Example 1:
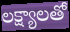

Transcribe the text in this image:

లక్ష్యాలతో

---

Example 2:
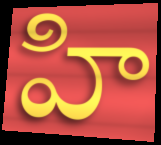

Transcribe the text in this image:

హి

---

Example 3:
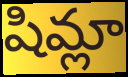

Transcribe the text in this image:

షిమ్లా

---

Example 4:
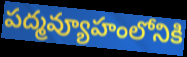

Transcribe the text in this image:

పద్మవ్యూహంలోనికి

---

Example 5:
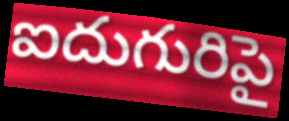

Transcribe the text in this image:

ఐదుగురిపై